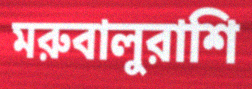
মরুবালুরাশি